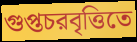
গুপ্তচরবৃত্তিতে